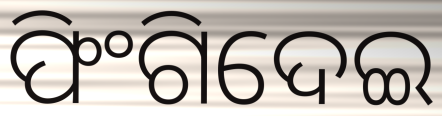
ଫିଂଗିଦେଇ